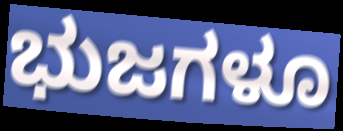
ಭುಜಗಳೂ